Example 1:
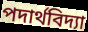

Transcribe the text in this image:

পদার্থবিদ্যা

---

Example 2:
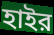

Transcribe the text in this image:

হাইর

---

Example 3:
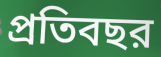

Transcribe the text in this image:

প্রতিবছর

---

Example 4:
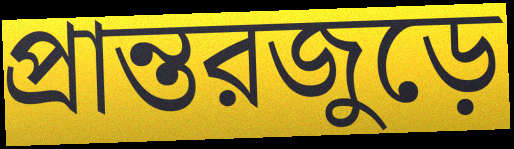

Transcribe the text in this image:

প্রান্তরজুড়ে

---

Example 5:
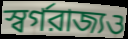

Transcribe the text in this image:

স্বর্গরাজ্যও